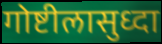
गोष्टीलासुध्दा